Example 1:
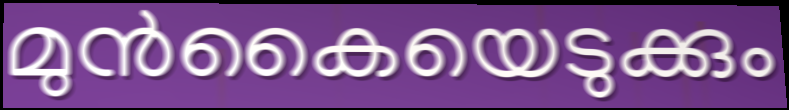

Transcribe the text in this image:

മുൻകൈയെടുക്കും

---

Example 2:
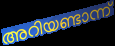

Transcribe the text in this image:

അറിയണ്ടാന്ന്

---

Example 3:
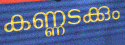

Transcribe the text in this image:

കണ്ണടക്കും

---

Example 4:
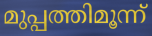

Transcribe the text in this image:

മുപ്പത്തിമൂന്ന്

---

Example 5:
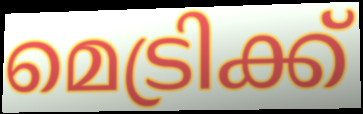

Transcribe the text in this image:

മെട്രിക്ക്